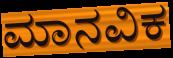
ಮಾನವಿಕ